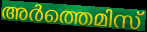
അർത്തെമിസ്